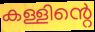
കള്ളിന്റെ